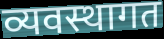
व्यवस्थागत